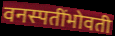
वनस्पतींभोवती